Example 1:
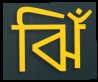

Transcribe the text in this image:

ঝিঁ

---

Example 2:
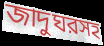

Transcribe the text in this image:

জাদুঘরসহ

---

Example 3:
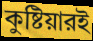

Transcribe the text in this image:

কুষ্টিয়ারই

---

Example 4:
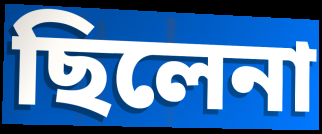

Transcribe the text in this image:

ছিলেনা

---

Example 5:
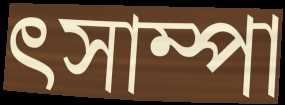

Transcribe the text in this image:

ৎসাম্পা